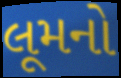
લૂમનો